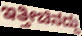
ಇತ್ತೀಚಿನದ್ದು